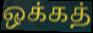
ஒக்கத்